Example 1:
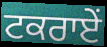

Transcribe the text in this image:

ਟਕਰਾਏਂ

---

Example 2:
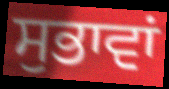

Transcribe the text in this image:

ਸੁਭਾਵਾਂ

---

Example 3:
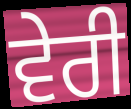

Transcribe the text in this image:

ਵੇਰੀ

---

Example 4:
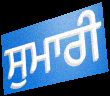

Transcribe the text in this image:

ਸੁਮਾਰੀ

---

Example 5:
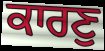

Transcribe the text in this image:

ਕਾਰਣੁ